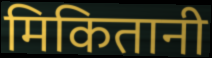
मिकितानी